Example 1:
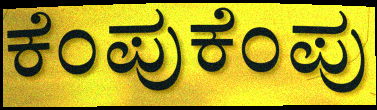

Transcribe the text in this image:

ಕೆಂಪುಕೆಂಪು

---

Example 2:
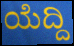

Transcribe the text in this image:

ಯೆದ್ದಿ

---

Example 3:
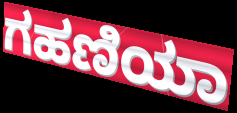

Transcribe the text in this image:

ಗಹಣಿಯಾ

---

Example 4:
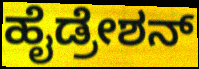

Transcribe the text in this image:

ಹೈಡ್ರೇಶನ್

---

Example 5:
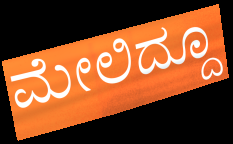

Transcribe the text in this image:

ಮೇಲಿದ್ದೂ